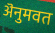
ऄनुमवत